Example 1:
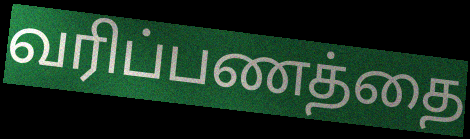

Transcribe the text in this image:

வரிப்பணத்தை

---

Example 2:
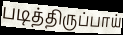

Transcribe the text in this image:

படித்திருப்பாய்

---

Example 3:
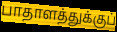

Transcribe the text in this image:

பாதாளத்துக்குப்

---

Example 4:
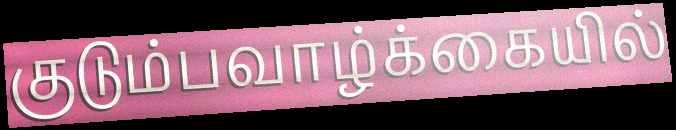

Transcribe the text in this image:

குடும்பவாழ்க்கையில்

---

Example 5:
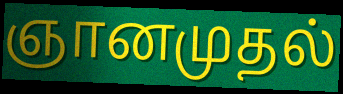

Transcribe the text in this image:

ஞானமுதல்